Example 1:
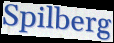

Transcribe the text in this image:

Spilberg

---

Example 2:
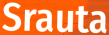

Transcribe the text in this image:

Srauta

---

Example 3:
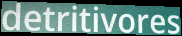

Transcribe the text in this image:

detritivores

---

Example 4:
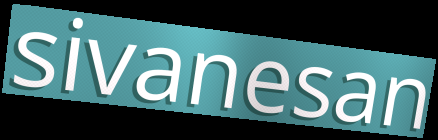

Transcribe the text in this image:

sivanesan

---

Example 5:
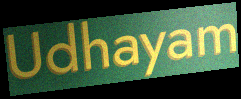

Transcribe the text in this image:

Udhayam